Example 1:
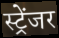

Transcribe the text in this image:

स्ट्रेंजर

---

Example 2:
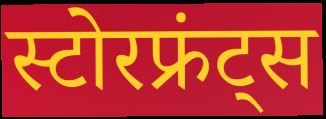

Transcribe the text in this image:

स्टोरफ्रंट्स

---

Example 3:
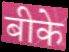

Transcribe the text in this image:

बीके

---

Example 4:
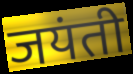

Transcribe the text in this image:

जयंती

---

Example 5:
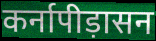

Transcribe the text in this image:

कर्नापीड़ासन